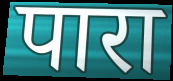
पारा